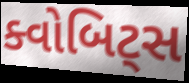
ક્વોબિટ્સ